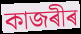
কাজৰীৰ